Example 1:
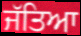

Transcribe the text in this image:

ਜੱਤਿਆ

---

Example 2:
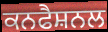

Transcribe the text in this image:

ਕਨਫੈਸ਼ਨਲ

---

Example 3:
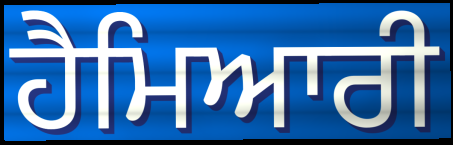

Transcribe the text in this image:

ਹੈਮਿਆਰੀ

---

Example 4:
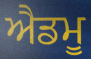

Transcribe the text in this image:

ਐਡਮੂ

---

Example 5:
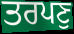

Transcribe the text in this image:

ਤਰਪਣੁ